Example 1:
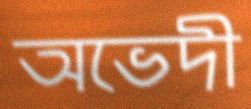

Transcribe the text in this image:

অভেদী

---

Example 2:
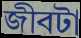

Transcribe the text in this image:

জীবটা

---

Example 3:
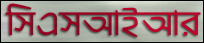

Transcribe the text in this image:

সিএসআইআর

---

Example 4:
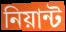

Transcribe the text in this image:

নিয়ান্ট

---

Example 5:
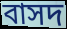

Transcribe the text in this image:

বাসদ